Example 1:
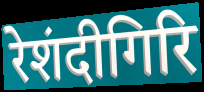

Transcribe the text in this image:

रेशंदीगिरि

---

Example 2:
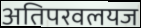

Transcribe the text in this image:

अतिपरवलयज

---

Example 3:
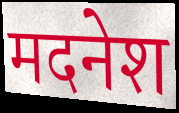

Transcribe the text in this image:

मदनेश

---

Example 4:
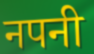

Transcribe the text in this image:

नपनी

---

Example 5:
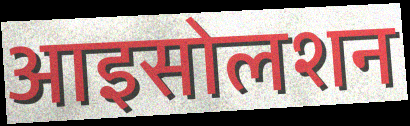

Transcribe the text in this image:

आइसोलशन